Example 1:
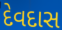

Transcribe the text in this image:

દેવદાસ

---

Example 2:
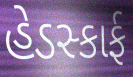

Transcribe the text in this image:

હેડસ્કાર્ફ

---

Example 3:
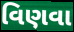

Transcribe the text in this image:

વિણવા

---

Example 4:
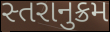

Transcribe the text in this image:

સ્તરાનુક્રમ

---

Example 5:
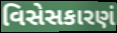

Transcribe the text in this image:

વિસેસકારણં